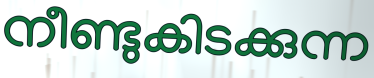
നീണ്ടുകിടക്കുന്ന